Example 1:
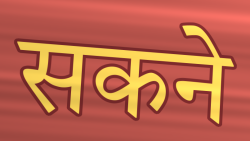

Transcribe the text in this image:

सकने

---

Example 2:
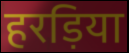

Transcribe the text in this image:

हरड़िया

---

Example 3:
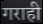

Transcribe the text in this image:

गराही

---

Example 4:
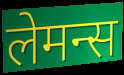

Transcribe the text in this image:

लेमन्स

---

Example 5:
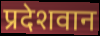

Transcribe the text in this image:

प्रदेशवान